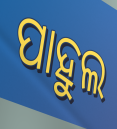
ପାହୁଲ